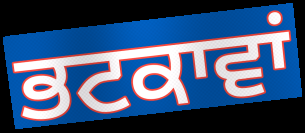
ਭਟਕਾਵਾਂ